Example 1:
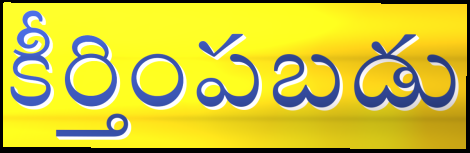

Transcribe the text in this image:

కీర్తింపబడు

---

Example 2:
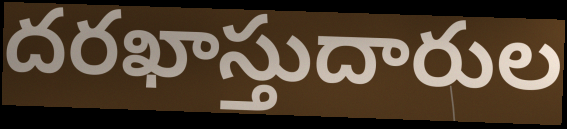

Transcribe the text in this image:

దరఖాస్తుదారుల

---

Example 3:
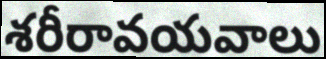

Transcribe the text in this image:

శరీరావయవాలు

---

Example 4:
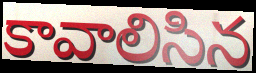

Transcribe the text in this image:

కావాలిసిన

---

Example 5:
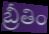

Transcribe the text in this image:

బ్రీతిం